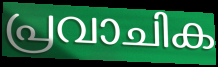
പ്രവാചിക